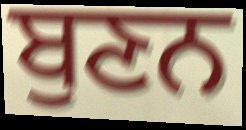
ਬੁਣਨ